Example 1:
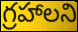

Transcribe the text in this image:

గ్రహాలని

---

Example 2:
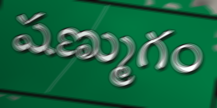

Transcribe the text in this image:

షణ్ముగం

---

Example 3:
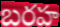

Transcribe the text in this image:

బరహ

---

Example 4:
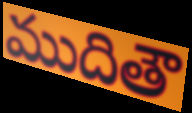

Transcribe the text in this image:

ముదితౌ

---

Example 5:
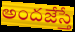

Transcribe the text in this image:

అందజేస్తే